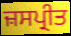
ਜ਼ਸਪ੍ਰੀਤ